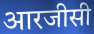
आरजीसी